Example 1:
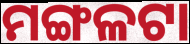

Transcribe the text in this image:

ମଙ୍ଗଳଟା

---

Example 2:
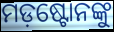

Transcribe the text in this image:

ମଡ଼ଷ୍ଟୋନଙ୍କୁ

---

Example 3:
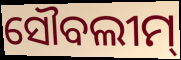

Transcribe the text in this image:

ସୌବଲୀମ୍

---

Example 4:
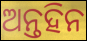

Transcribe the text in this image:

ଅନ୍ତହିନ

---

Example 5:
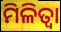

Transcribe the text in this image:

ମିଳିତ୍ଵା